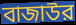
বাজাউর